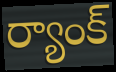
ర్యాంక్